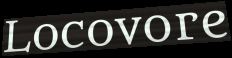
Locovore